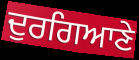
ਦੁਰਗਿਆਣੇ